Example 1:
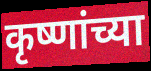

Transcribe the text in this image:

कृष्णांच्या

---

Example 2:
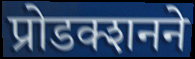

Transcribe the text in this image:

प्रोडक्शनने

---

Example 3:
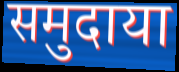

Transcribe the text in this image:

समुदाया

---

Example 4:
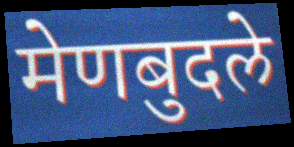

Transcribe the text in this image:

मेणबुदले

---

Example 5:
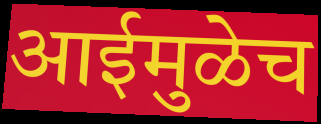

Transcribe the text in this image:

आईमुळेच